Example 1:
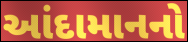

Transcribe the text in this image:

આંદામાનનો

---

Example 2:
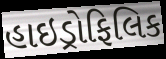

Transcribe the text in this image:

હાઇડ્રોફિલિક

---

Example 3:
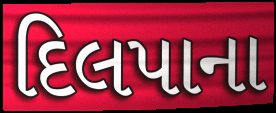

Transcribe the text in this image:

દિલપાના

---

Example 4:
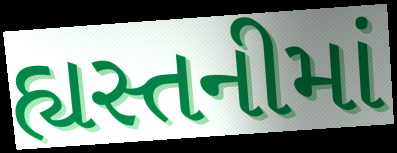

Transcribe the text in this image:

હ્યસ્તનીમાં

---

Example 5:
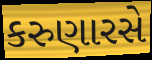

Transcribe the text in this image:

કરુણારસે